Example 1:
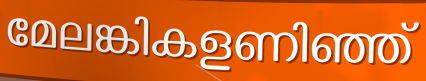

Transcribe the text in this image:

മേലങ്കികളണിഞ്ഞ്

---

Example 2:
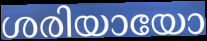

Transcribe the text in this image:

ശരിയായോ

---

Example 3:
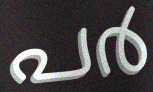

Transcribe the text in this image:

പർ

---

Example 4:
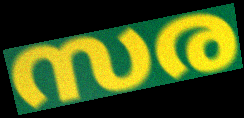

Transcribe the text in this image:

സര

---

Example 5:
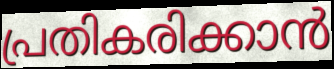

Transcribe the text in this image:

പ്രതികരിക്കാൻ